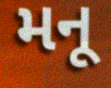
મનૂ